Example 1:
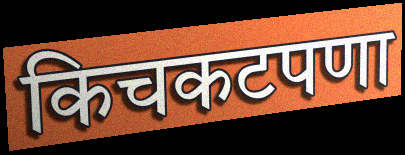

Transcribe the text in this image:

किचकटपणा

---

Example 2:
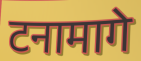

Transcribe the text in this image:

टनामागे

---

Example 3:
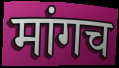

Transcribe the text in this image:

मांगच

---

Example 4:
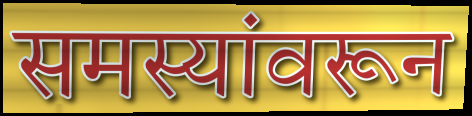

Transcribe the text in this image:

समस्यांवरून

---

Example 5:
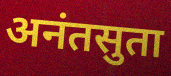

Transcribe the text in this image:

अनंतसुता